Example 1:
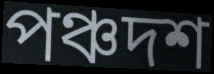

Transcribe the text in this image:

পঞ্চদশ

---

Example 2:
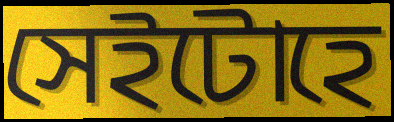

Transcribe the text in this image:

সেইটোহে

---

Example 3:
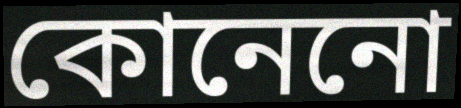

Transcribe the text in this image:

কোনেনো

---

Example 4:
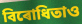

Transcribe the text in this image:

বিৰোধিতাও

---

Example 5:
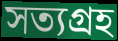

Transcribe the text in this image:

সত্যগ্ৰহ